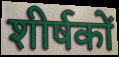
शीर्षकों